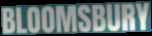
BLOOMSBURY